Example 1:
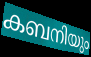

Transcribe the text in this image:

കബനിയും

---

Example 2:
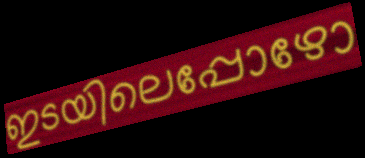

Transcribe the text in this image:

ഇടയിലെപ്പോഴോ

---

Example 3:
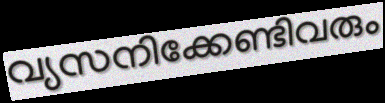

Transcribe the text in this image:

വ്യസനിക്കേണ്ടിവരും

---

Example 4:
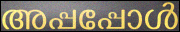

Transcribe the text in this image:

അപ്പപ്പോൾ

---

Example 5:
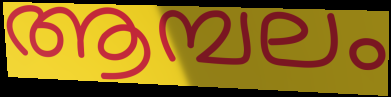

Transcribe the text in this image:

ആമ്പലം